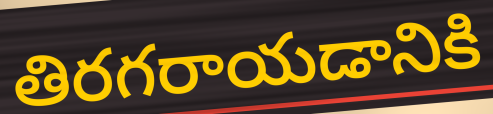
తిరగరాయడానికి